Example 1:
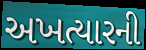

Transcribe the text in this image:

અખત્યારની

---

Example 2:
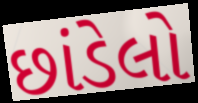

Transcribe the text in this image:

છાંડેલો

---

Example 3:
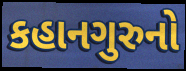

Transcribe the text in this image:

કહાનગુરુનો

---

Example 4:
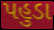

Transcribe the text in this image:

પહુડા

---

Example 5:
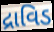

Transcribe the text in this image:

દ્રાવિડ